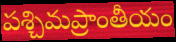
పశ్చిమప్రాంతీయం